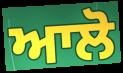
ਆਲੋ